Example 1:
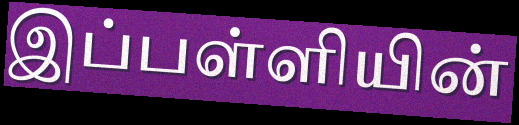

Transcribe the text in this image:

இப்பள்ளியின்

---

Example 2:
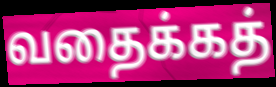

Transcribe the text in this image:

வதைக்கத்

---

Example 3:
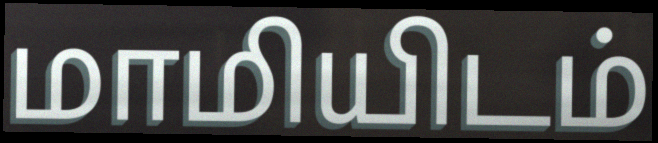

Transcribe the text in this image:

மாமியிடம்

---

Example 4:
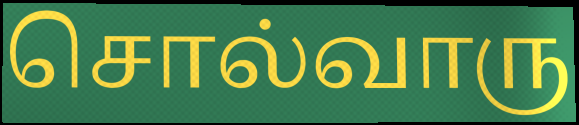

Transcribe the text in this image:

சொல்வாரு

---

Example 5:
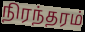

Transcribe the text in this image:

நிரந்தரம்